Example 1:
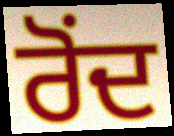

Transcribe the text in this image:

ਰੋਂਦ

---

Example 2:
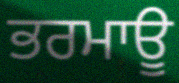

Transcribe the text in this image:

ਭਰਮਾਊ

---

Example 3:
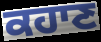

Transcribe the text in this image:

ਕਹਾਣ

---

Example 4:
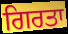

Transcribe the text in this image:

ਗਿਰਤਾ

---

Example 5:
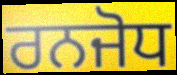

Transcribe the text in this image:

ਰਨਜੋਧ